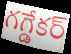
గగ్డేకర్